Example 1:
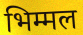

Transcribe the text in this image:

भिम्मल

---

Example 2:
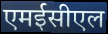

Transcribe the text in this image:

एमईसीएल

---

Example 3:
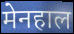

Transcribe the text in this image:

मेनहाल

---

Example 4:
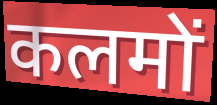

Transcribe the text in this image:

कलमों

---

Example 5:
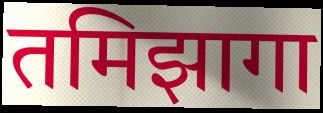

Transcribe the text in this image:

तमिझागा